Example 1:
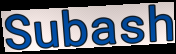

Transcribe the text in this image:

Subash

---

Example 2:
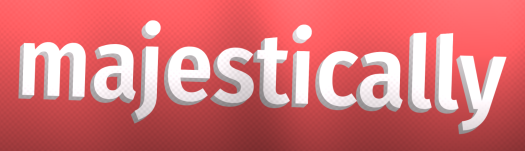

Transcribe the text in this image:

majestically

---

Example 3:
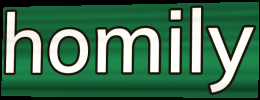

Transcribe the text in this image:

homily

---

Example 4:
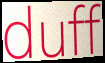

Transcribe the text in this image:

duff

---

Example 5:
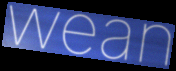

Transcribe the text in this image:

wean